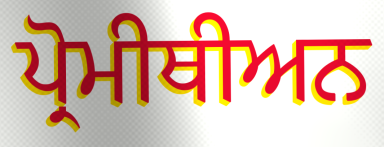
ਪ੍ਰੋਮੀਥੀਅਨ